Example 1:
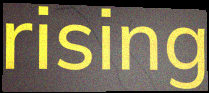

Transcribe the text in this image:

rising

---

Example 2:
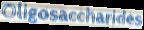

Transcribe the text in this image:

Oligosaccharides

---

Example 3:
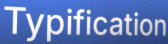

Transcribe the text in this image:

Typification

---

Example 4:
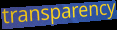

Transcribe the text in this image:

transparency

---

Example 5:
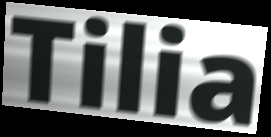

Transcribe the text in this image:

Tilia